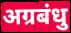
अग्रबंधु